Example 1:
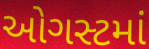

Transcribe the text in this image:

ઓગસ્ટમાં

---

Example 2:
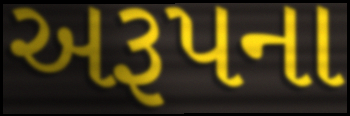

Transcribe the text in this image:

અરૂપના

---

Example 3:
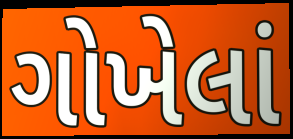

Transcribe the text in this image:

ગોખેલાં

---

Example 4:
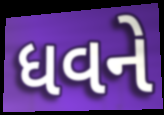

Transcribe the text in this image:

ધવને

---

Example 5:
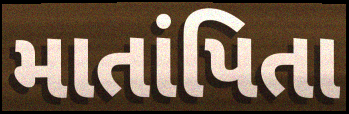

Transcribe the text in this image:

માતાંપિતા